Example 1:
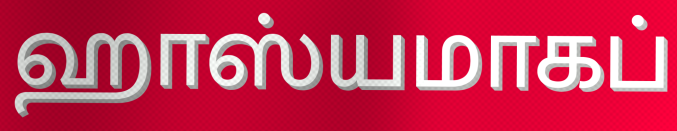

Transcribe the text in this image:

ஹாஸ்யமாகப்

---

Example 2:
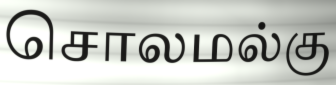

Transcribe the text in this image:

சொலமல்கு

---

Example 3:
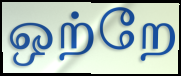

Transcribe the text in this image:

ஒற்றே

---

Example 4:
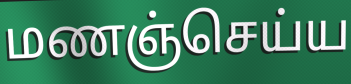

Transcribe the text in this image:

மணஞ்செய்ய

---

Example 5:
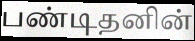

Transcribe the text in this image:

பண்டிதனின்